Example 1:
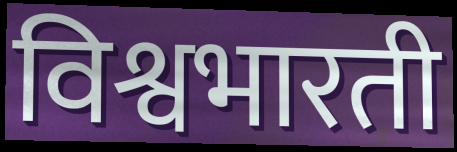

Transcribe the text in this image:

विश्वभारती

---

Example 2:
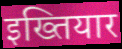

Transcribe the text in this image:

इख्तियार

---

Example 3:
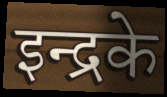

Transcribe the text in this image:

इन्द्रके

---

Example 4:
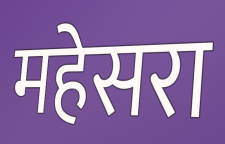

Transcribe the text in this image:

महेसरा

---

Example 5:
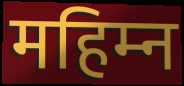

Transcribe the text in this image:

महिम्न